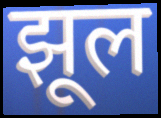
झूल